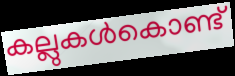
കല്ലുകൾകൊണ്ട്